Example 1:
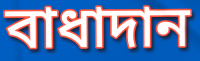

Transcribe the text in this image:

বাধাদান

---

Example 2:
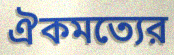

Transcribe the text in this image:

ঐকমত্যের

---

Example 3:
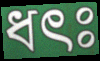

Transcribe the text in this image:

ধৎঃ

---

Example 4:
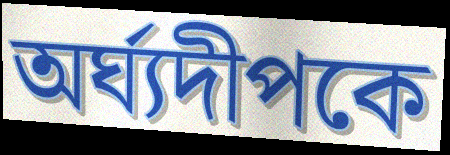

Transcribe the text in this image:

অর্ঘ্যদীপকে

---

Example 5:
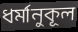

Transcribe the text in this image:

ধর্মানুকূল